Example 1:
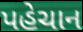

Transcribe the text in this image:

પહેચાન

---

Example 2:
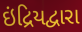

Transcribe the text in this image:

ઇંદ્રિયદ્વારા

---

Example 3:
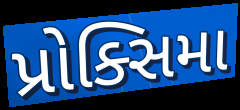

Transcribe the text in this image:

પ્રોક્સિમા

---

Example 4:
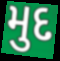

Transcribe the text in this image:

મુદ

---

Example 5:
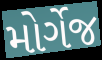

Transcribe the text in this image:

મોર્ગેજ